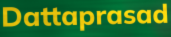
Dattaprasad